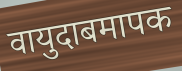
वायुदाबमापक